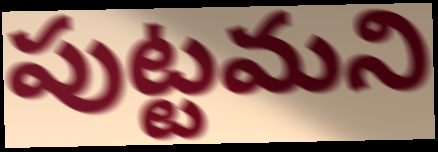
పుట్టమని